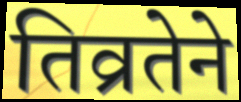
तिव्रतेने